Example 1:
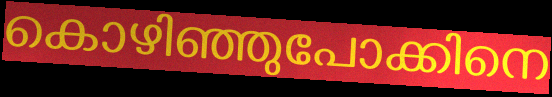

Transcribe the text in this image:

കൊഴിഞ്ഞുപോക്കിനെ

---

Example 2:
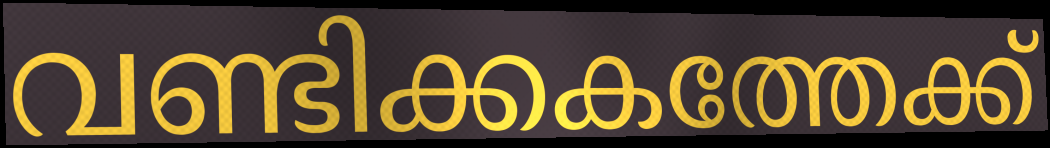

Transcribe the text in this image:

വണ്ടിക്കകത്തേക്ക്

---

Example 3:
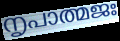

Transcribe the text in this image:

നൃപാത്മജഃ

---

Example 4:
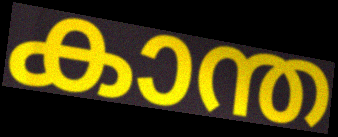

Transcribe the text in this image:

കാന്ത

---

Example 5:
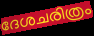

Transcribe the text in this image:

ദേശചരിത്രം